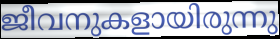
ജീവനുകളായിരുന്നു